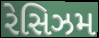
રેસિઝમ